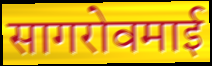
सागरोवमाई